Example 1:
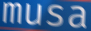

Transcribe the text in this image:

musa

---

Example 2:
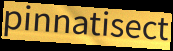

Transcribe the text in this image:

pinnatisect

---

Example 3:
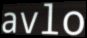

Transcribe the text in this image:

avlo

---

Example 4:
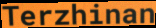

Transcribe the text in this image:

Terzhinan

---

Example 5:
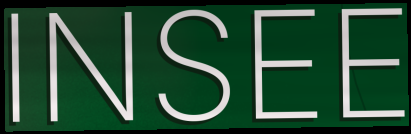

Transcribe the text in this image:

INSEE